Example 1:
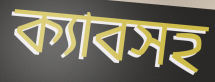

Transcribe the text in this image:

ক্যাবসহ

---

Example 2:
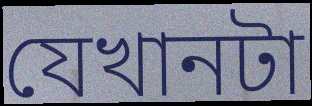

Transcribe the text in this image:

যেখানটা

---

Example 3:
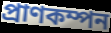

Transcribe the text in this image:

প্রাণকম্পন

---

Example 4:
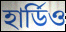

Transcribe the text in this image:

হার্ডিও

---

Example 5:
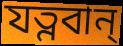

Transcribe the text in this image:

যত্নবান্